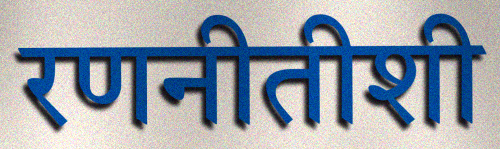
रणनीतीशी